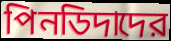
পিনডিদাদের